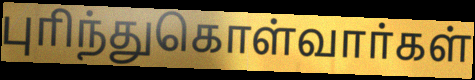
புரிந்துகொள்வார்கள்